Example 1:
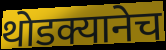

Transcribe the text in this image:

थोडक्यानेच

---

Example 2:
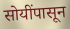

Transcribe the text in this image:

सोयींपासून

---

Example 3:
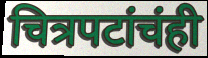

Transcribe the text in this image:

चित्रपटांचंही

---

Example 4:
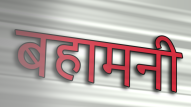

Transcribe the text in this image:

बहामनी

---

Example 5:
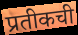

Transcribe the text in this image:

प्रतीकची